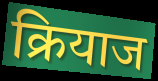
क्रियाज